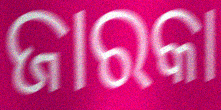
ଜାରକା